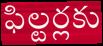
ఫిల్టర్లకు